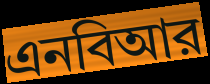
এনবিআর